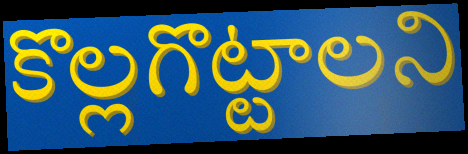
కొల్లగొట్టాలని